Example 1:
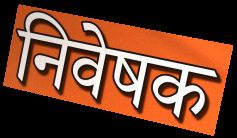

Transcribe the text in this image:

निवेषक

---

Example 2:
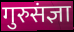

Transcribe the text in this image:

गुरुसंज्ञा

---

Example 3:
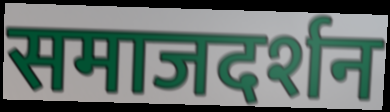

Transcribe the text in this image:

समाजदर्शन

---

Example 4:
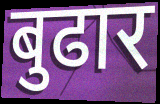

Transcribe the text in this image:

बुढार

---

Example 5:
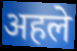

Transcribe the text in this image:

अहले